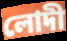
লোদী